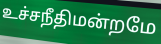
உச்சநீதிமன்றமே